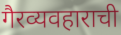
गैरव्यवहाराची